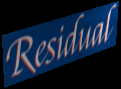
Residual